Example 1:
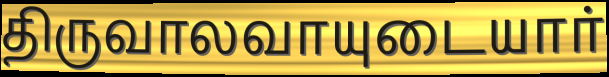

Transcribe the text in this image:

திருவாலவாயுடையார்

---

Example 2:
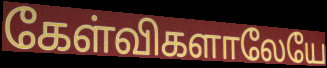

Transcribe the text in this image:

கேள்விகளாலேயே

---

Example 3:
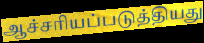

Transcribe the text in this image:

ஆச்சரியப்படுத்தியது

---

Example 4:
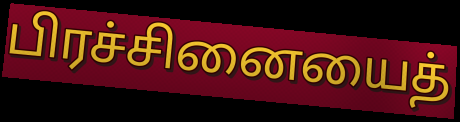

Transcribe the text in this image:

பிரச்சினையைத்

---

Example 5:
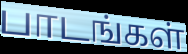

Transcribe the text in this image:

பாடங்கள்